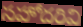
సహోదరివి